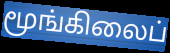
மூங்கிலைப்